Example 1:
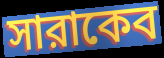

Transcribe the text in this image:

সারাকেব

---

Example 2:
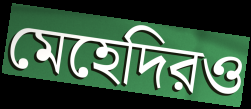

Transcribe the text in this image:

মেহেদিরও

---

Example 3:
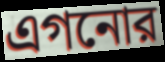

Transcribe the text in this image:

এগনোর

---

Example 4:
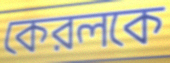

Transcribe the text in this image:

কেরলকে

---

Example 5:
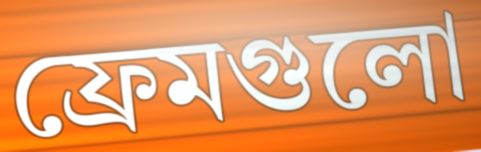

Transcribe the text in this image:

ফ্রেমগুলো